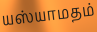
யஸ்யாமதம்